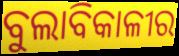
ବୁଲାବିକାଳୀର